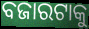
ବଜାରଟାକୁ